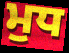
ਮੁਧ